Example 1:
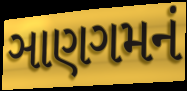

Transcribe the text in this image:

ઞાણગમનં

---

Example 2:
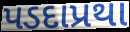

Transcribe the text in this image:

પડદાપ્રથા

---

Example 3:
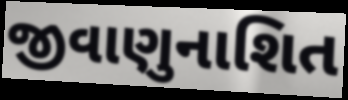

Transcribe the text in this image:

જીવાણુનાશિત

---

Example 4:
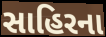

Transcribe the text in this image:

સાહિરના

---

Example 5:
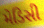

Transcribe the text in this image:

મેડિસી